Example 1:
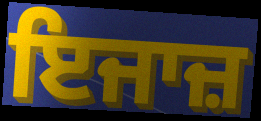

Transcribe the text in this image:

ਇਜਾਜ਼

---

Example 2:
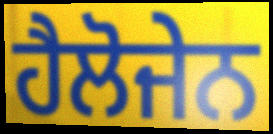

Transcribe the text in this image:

ਹੈਲੋਜੇਨ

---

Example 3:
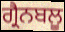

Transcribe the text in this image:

ਗ੍ਰੈਨਬਲੂ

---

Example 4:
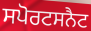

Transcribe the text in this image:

ਸਪੋਰਟਸਨੈਟ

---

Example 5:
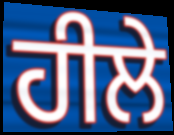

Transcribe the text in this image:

ਹੀਲੇ